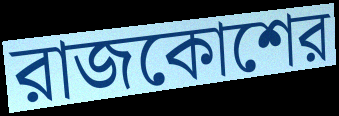
রাজকোশের